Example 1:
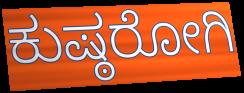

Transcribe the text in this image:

ಕುಷ್ಠರೋಗಿ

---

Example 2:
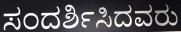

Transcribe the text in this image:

ಸಂದರ್ಶಿಸಿದವರು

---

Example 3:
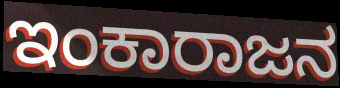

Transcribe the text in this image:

ಇಂಕಾರಾಜನ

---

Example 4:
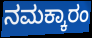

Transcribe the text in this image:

ನಮಕ್ಕಾರಂ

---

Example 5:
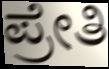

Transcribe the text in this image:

ಪ್ರೇತಿ